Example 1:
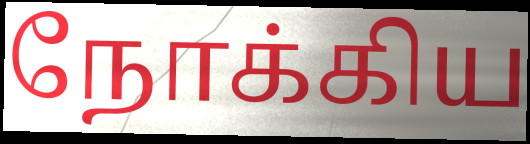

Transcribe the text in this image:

நோக்கிய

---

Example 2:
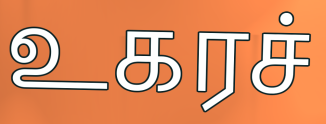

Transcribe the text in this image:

உகரச்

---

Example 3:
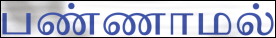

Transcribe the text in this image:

பண்ணாமல்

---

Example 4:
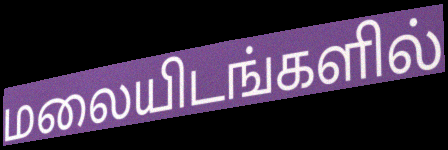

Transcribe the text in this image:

மலையிடங்களில்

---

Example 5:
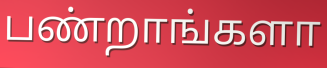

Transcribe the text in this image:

பண்றாங்களா